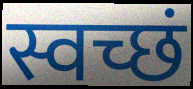
स्वच्छं